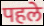
पहले